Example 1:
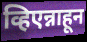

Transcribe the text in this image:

व्हिएन्नाहून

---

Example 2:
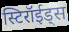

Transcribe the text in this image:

स्टिरॉईड्स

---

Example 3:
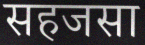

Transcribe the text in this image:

सहजसा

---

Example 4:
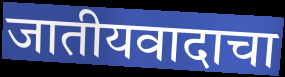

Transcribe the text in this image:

जातीयवादाचा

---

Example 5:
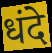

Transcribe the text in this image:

धंदे